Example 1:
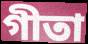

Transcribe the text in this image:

গীতা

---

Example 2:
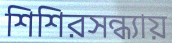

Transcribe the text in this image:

শিশিরসন্ধ্যায়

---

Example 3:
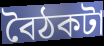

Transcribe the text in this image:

বৈঠকটা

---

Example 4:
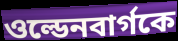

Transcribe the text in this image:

ওল্ডেনবার্গকে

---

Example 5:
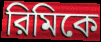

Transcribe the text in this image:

রিমিকে